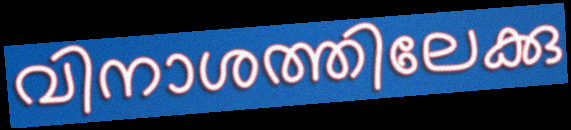
വിനാശത്തിലേക്കു